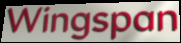
Wingspan